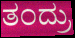
ತಂದ್ರು